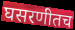
घसरणीतच